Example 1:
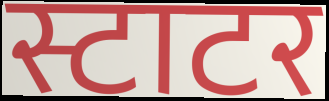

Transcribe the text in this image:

स्टाटर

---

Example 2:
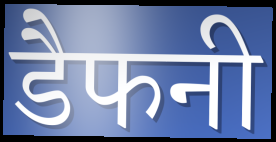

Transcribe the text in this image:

डैफनी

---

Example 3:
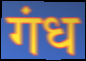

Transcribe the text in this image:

गंध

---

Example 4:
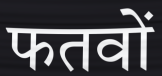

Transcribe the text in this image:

फतवों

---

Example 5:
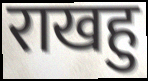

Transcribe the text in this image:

राखहु